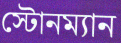
স্টোনম্যান